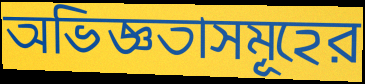
অভিজ্ঞতাসমূহের